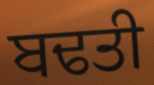
ਬਢਤੀ